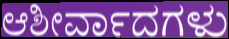
ಆಶೀರ್ವಾದಗಳು